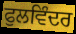
ਫੁਲਵਿੰਦਰ